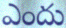
ఎందు